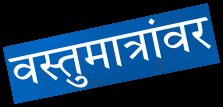
वस्तुमात्रांवर